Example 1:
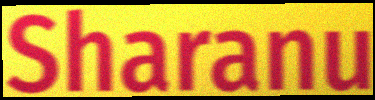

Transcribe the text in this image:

Sharanu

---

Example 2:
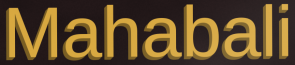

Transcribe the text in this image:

Mahabali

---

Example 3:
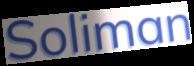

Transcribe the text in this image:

Soliman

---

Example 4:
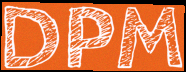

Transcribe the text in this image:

DPM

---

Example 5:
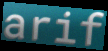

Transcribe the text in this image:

arif